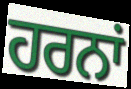
ਹਰਨਾਂ